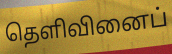
தெளிவினைப்